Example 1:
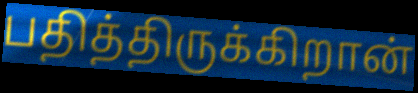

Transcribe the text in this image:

பதித்திருக்கிறான்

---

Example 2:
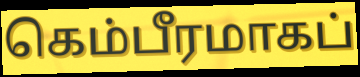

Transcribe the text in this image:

கெம்பீரமாகப்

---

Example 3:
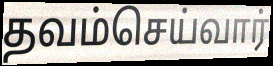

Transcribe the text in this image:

தவம்செய்வார்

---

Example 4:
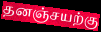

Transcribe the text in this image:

தனஞ்சயற்கு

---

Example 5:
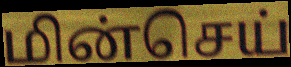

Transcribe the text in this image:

மின்செய்